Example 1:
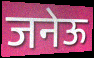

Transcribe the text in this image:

जनेऊ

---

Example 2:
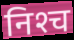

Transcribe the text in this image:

निश्च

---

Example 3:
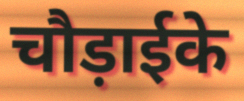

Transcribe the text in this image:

चौड़ाईके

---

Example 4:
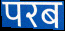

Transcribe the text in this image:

परब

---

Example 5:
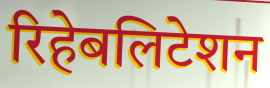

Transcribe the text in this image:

रिहेबलिटेशन